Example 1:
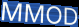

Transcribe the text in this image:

MMOD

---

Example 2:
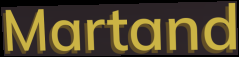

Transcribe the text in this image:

Martand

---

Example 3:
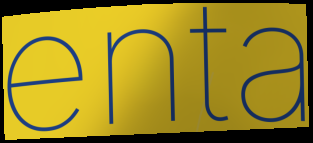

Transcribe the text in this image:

enta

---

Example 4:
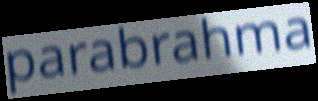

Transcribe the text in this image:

parabrahma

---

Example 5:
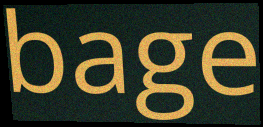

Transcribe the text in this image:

bage